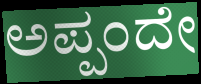
ಅಪ್ಪಂದೇ